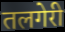
तलगेरी